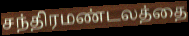
சந்திரமண்டலத்தை